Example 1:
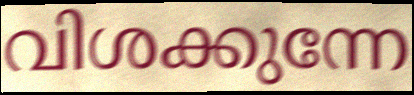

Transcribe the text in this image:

വിശക്കുന്നേ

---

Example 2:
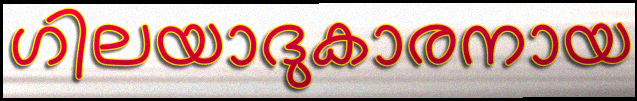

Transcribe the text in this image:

ഗിലയാദുകാരനായ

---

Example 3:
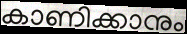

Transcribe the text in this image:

കാണിക്കാനും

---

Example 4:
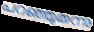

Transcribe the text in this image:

പറഞ്ഞുതന്നു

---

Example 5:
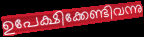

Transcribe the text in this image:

ഉപേക്ഷിക്കേണ്ടിവന്നു